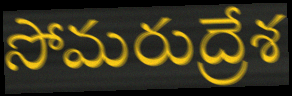
సోమరుద్రేశ